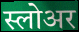
स्लोअर